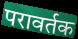
परावर्तक